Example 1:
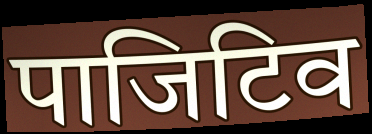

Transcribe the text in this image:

पाजिटिव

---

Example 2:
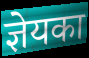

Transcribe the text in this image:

ज्ञेयका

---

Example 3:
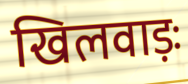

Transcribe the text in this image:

खिलवाड़ः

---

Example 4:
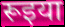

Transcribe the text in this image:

रूइया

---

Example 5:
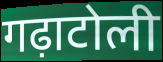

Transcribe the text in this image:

गढ़ाटोली